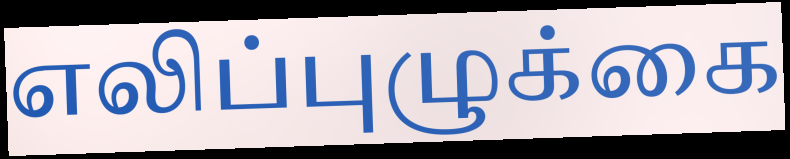
எலிப்புழுக்கை